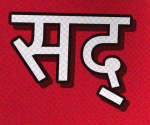
सद्